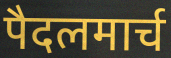
पैदलमार्च